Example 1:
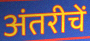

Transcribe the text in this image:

अंतरीचें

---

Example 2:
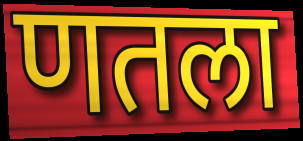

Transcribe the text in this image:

णतला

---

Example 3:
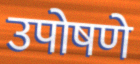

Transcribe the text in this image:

उपोषणे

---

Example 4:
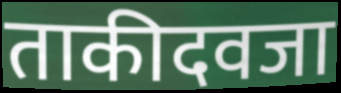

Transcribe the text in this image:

ताकीदवजा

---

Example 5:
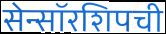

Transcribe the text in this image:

सेन्सॉरशिपची